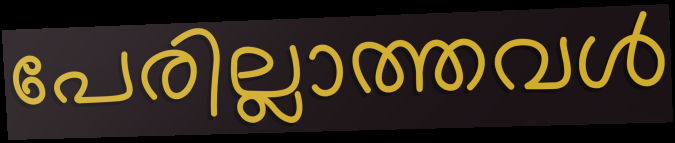
പേരില്ലാത്തവൾ